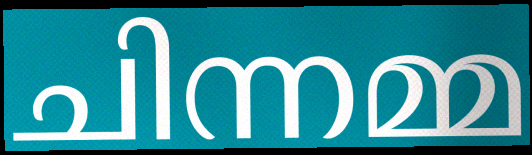
ചിന്നമ്മ